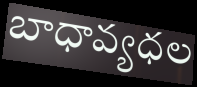
బాధావ్యధల